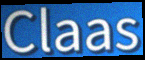
Claas